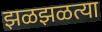
झळझळत्या